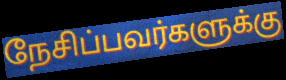
நேசிப்பவர்களுக்கு